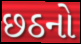
છઠનો